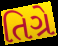
તિગ્રે